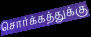
சொர்க்கத்துக்கு